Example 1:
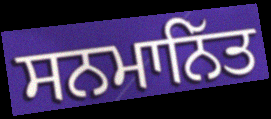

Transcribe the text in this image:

ਸਨਮਾਨਿੱਤ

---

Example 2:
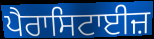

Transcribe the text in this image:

ਪੈਰਾਸਿਟਾਈਜ਼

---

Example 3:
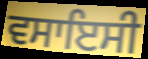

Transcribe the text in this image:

ਵਸਾਇਸੀ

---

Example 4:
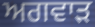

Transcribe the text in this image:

ਅਗਵਾੜ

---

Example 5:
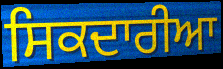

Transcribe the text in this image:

ਸਿਕਦਾਰੀਆ